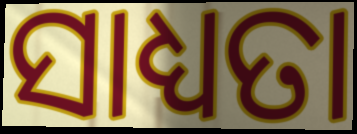
ସାଧ୍ୟତା